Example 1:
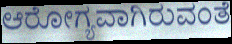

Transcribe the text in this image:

ಆರೋಗ್ಯವಾಗಿರುವಂತೆ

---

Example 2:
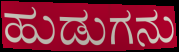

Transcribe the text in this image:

ಹುಡುಗನು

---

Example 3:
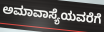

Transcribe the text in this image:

ಅಮಾವಾಸ್ಯೆಯವರೆಗೆ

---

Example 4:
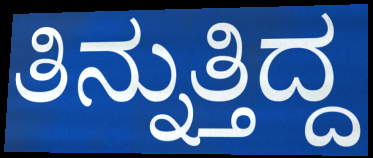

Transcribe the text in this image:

ತಿನ್ನುತ್ತಿದ್ದ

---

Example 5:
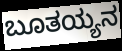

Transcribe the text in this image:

ಬೂತಯ್ಯನ